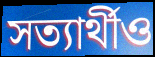
সত্যার্থীও